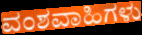
ವಂಶವಾಹಿಗಳು